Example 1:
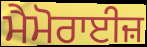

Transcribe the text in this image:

ਮੈਮੋਰਾਈਜ਼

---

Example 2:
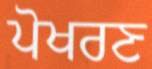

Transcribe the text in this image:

ਪੋਖਰਣ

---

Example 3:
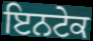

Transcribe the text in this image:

ਇਨਟੇਕ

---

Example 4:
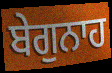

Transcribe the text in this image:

ਬੇਗੁਨਾਹ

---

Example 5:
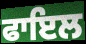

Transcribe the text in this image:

ਫਾਇਲ